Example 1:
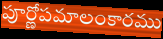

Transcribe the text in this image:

పూర్ణోపమాలంకారము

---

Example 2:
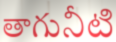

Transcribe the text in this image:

తాగునీటి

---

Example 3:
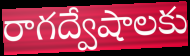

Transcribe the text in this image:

రాగద్వేషాలకు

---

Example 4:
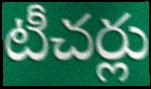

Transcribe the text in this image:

టీచర్లు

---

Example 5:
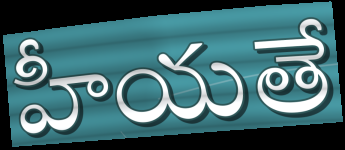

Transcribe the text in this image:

హీయతే